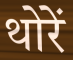
थोरें